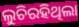
ଲୁଚିରହିଥିଲା